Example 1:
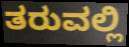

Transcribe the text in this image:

ತರುವಲ್ಲಿ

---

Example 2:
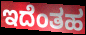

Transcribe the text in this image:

ಇದೆಂತಹ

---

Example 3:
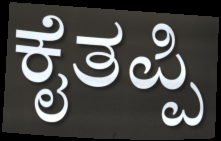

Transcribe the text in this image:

ಕೈತಪ್ಪಿ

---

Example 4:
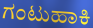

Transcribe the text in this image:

ಗಂಟುಹಾಕಿ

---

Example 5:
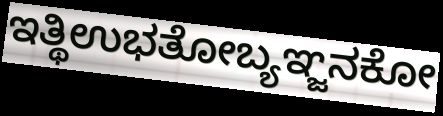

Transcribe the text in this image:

ಇತ್ಥಿಉಭತೋಬ್ಯಞ್ಜನಕೋ